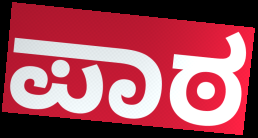
ಪಾಠ